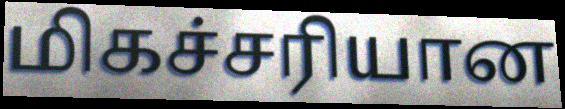
மிகச்சரியான